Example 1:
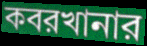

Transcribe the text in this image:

কবরখানার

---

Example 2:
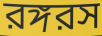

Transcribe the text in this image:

রঙ্গরস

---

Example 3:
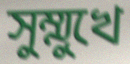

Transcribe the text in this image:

সুম্মুখে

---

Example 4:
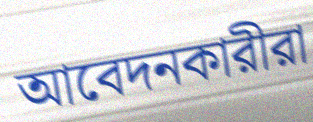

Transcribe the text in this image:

আবেদনকারীরা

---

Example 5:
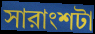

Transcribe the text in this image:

সারাংশটা